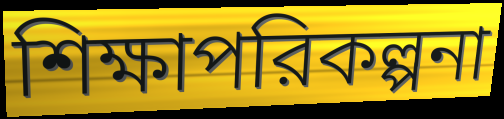
শিক্ষাপরিকল্পনা